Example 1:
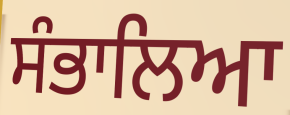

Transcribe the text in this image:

ਸੰਭਾਲਿਆ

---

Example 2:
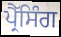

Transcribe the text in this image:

ਪ੍ਰੈੱਸਿੰਗ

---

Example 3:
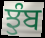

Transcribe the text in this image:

ਝੁੰਬ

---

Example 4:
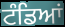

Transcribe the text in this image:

ਟੰਡਿਆਂ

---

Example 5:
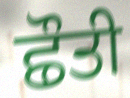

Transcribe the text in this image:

ਛੌਤੀ